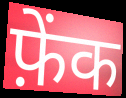
फ़ेंक